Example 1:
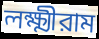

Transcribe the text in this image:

লক্ষ্মীরাম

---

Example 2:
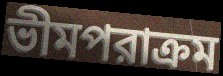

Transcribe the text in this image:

ভীমপরাক্রম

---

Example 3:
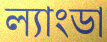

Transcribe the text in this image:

ল্যাংডা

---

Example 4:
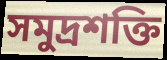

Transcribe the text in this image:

সমুদ্রশক্তি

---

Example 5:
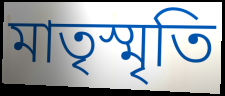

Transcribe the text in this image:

মাতৃস্মৃতি